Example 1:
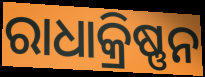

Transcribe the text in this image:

ରାଧାକ୍ରିଷ୍ଣନ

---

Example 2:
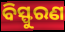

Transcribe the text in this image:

ବିସ୍ଫୁରଣ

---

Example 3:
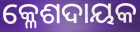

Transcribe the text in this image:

କ୍ଳେଶଦାୟକ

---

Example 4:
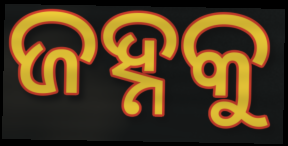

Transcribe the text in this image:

ଜହ୍ନକୁ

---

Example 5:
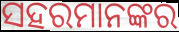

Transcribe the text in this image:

ସହରମାନଙ୍କର